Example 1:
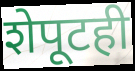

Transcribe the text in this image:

शेपूटही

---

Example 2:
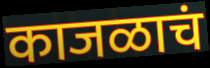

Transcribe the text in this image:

काजळाचं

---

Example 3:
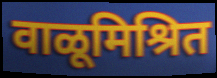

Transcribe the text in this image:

वाळूमिश्रित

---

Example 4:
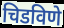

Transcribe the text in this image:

चिडविणे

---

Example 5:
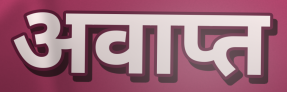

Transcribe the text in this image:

अवाप्त